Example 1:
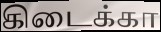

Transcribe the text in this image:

கிடைக்கா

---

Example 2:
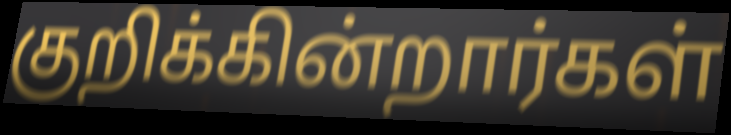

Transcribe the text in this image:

குறிக்கின்றார்கள்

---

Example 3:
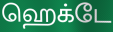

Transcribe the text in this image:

ஹெக்டே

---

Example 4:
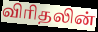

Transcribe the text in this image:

விரிதலின்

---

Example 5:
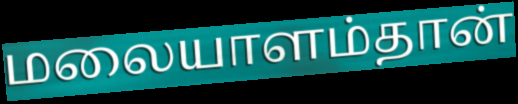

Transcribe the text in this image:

மலையாளம்தான்